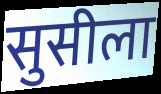
सुसीला